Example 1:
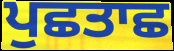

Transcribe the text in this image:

ਪੁਛਤਾਛ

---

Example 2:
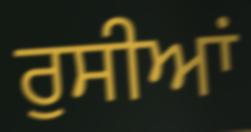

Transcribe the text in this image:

ਰੁਸੀਆਂ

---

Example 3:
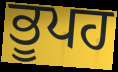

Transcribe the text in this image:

ਭੂਪਹ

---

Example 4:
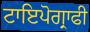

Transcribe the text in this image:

ਟਾਇਪੋਗ੍ਰਾਫੀ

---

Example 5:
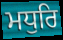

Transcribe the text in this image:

ਮਧੁਰਿ